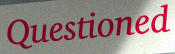
Questioned